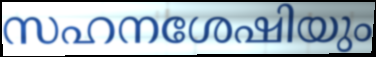
സഹനശേഷിയും